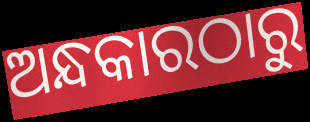
ଅନ୍ଧକାରଠାରୁ